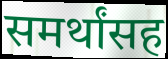
समर्थांसह